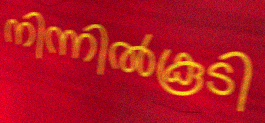
നിന്നിൽകൂടി